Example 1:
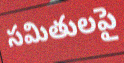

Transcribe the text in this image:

సమితులపై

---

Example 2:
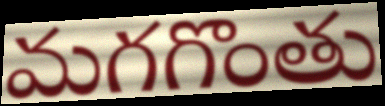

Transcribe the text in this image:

మగగొంతు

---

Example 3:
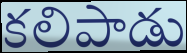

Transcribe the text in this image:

కలిపాడు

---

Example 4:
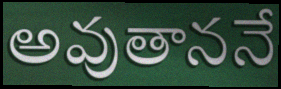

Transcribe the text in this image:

అవుతాననే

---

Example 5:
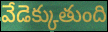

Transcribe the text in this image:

వేడెక్కుతుంది